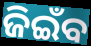
ଜିଇଁବ